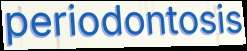
periodontosis